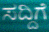
ಸದ್ದಿಗೆ